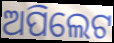
ଅପିଲେଟ